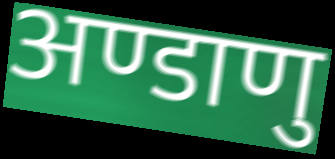
अण्डाणु